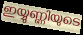
ഇയ്യുണ്ണിയുടെ